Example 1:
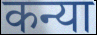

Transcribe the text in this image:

कन्या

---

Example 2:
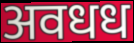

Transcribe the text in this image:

अवधध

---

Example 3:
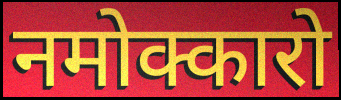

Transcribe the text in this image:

नमोक्कारो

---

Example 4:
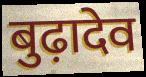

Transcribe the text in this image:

बुढ़ादेव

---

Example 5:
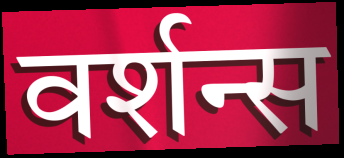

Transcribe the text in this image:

वर्शन्स